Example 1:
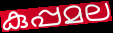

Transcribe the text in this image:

കുപ്പമല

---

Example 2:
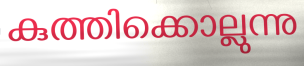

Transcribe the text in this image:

കുത്തിക്കൊല്ലുന്നു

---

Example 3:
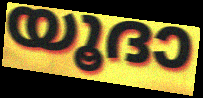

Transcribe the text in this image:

യൂദാ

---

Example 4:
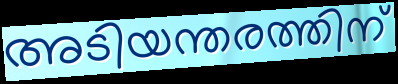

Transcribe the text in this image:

അടിയന്തരത്തിന്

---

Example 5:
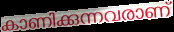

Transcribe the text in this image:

കാണിക്കുന്നവരാണ്